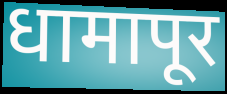
धामापूर